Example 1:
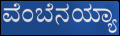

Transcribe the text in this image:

ವೆಂಬೆನಯ್ಯಾ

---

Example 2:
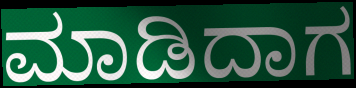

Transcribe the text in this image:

ಮಾಡಿದಾಗ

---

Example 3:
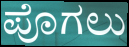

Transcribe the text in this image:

ಪೊಗಲು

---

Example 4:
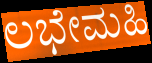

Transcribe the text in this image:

ಲಭೇಮಹಿ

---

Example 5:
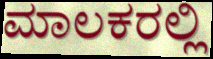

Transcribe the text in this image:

ಮಾಲಕರಲ್ಲಿ